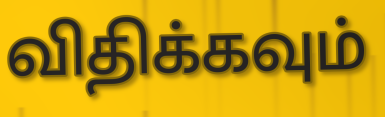
விதிக்கவும்